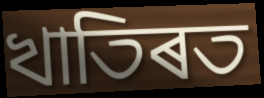
খাতিৰত